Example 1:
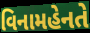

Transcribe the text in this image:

વિનામહેનતે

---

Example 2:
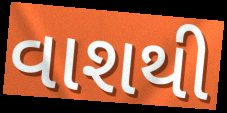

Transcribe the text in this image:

વાશથી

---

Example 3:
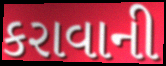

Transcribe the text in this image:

કરાવાની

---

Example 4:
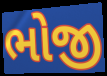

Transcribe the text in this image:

ભોજી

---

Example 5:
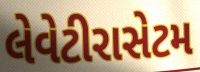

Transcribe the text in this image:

લેવેટીરાસેટમ